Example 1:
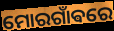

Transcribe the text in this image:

ମୋରଗାଁଵରେ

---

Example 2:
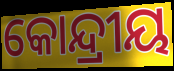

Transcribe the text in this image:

କୋନ୍ଦ୍ରୀୟ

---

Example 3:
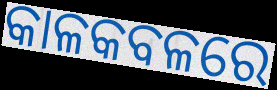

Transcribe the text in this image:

କାଳକବଳରେ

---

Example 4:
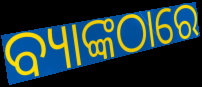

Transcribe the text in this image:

ବ୍ୟାଙ୍କଠାରେ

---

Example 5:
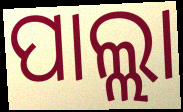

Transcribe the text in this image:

ପାଲ୍ଲା